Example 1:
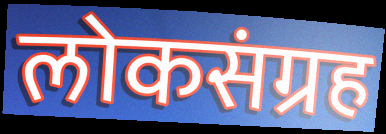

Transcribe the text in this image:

लोकसंग्रह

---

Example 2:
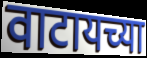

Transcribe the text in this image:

वाटायच्या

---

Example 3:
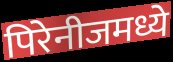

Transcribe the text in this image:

पिरेनीजमध्ये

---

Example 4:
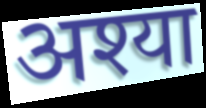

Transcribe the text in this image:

अश्या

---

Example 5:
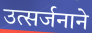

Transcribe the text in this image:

उत्सर्जनाने